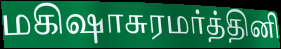
மகிஷாசுரமர்த்தினி